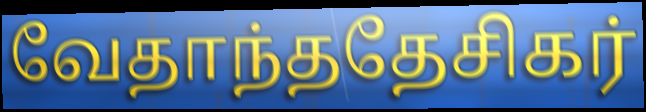
வேதாந்ததேசிகர்